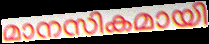
മാനസികമായി